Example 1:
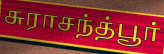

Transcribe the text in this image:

சுராசந்த்பூர்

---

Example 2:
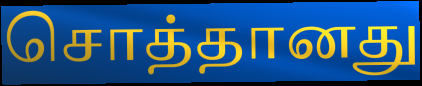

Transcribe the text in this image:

சொத்தானது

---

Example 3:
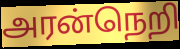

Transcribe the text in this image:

அரன்நெறி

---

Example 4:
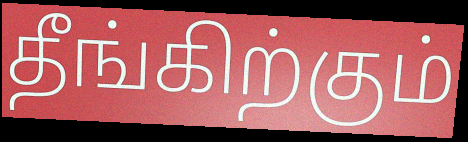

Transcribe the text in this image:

தீங்கிற்கும்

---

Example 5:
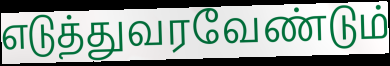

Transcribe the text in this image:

எடுத்துவரவேண்டும்